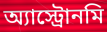
অ্যাস্ট্রোনমি